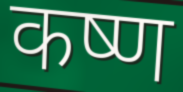
कष्ण